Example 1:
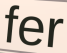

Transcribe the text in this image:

fer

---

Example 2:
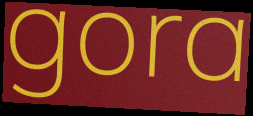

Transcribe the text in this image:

gora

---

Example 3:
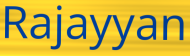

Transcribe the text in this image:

Rajayyan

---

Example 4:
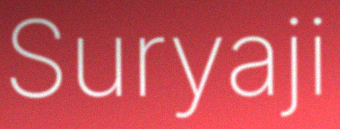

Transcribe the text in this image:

Suryaji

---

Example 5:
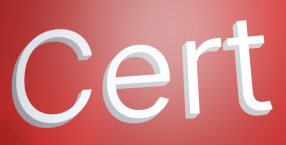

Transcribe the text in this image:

Cert